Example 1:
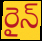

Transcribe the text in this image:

రైన్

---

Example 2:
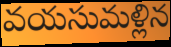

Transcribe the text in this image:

వయసుమళ్లిన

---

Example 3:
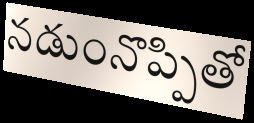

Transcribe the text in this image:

నడుంనొప్పితో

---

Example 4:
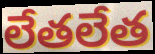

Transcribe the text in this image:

లేతలేత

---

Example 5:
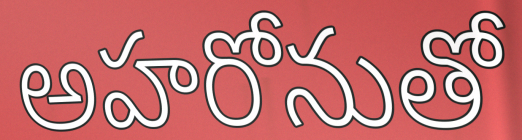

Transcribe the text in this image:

అహరోనుతో